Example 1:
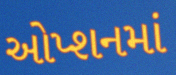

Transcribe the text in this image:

ઓપ્શનમાં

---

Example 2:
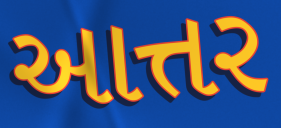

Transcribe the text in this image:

આત્તર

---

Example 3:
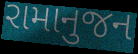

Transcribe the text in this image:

રામાનુજન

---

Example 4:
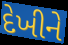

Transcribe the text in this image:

દેખીને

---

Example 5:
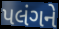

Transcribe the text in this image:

પલંગને